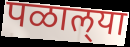
पळाल्या